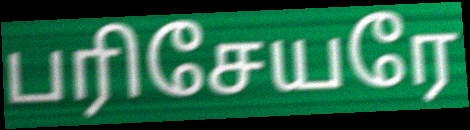
பரிசேயரே